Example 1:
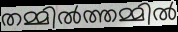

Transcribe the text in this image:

തമ്മിൽത്തമ്മിൽ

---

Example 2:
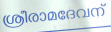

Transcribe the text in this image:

ശ്രീരാമദേവന്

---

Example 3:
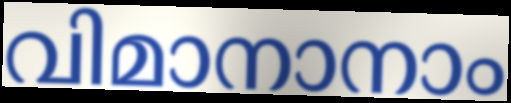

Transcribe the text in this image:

വിമാനാനാം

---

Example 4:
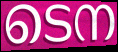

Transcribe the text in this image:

ടെന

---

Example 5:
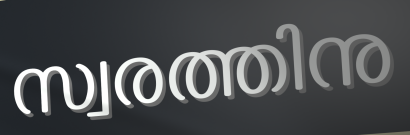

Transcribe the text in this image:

സ്വരത്തിനു